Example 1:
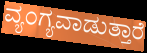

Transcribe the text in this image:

ವ್ಯಂಗ್ಯವಾಡುತ್ತಾರೆ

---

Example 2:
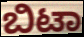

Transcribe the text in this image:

ಬಿಟಾ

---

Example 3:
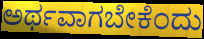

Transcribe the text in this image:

ಅರ್ಥವಾಗಬೇಕೆಂದು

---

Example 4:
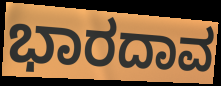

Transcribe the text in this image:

ಭಾರದಾವ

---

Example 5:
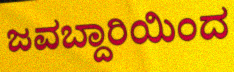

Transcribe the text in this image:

ಜವಬ್ದಾರಿಯಿಂದ